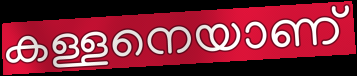
കള്ളനെയാണ്